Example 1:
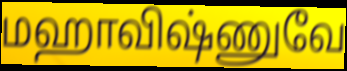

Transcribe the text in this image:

மஹாவிஷ்ணுவே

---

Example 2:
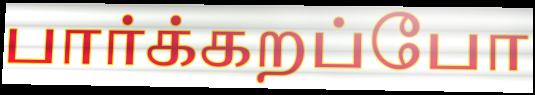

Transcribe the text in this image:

பார்க்கறப்போ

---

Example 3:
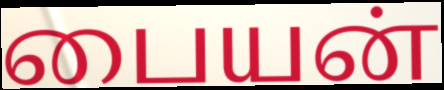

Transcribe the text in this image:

பையன்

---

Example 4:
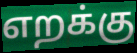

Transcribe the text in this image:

எறக்கு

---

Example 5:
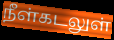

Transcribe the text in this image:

நீள்கடலுள்